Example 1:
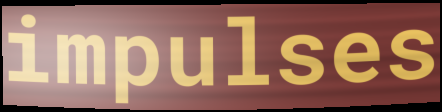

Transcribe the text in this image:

impulses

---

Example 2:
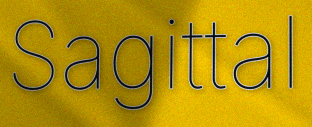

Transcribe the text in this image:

Sagittal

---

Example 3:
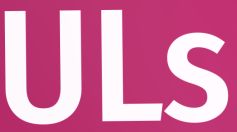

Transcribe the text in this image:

ULs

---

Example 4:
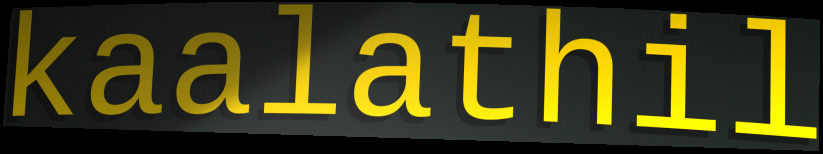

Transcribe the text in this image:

kaalathil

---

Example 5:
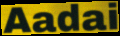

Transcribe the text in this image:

Aadai